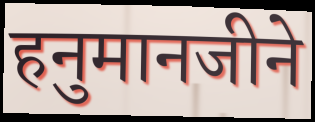
हनुमानजीने